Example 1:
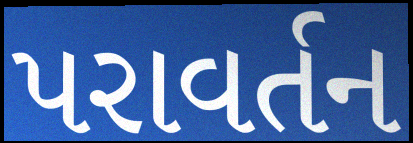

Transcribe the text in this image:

પરાવર્તન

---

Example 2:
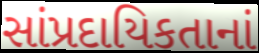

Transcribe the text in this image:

સાંપ્રદાયિકતાનાં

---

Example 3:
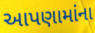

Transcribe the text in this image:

આપણામાંના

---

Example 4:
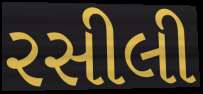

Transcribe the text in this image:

રસીલી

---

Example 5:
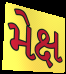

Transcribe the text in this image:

મેક્ષ